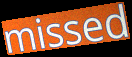
missed